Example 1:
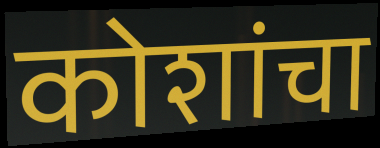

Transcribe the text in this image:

कोशांचा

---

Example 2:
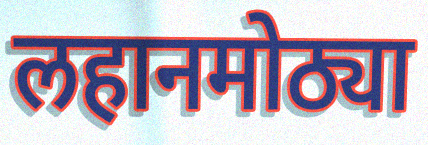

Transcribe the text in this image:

लहानमोठ्या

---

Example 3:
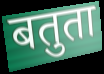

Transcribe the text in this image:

बतुता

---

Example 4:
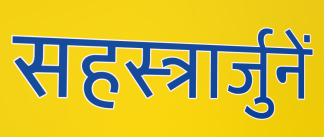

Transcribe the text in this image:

सहस्त्रार्जुनें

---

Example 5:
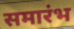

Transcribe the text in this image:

समारंभ